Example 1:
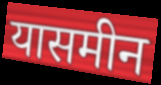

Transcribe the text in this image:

यासमीन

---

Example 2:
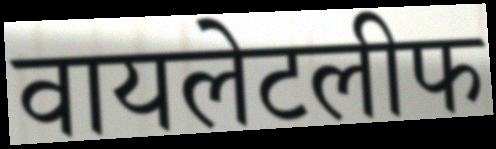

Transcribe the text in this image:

वायलेटलीफ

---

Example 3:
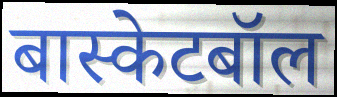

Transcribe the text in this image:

बास्केटबॉल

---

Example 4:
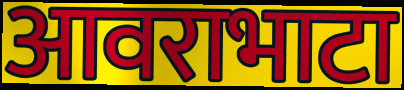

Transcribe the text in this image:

आवराभाटा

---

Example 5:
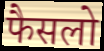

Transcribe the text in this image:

फैसलो